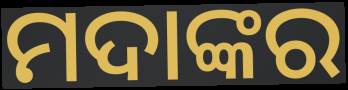
ମଦାଙ୍କର